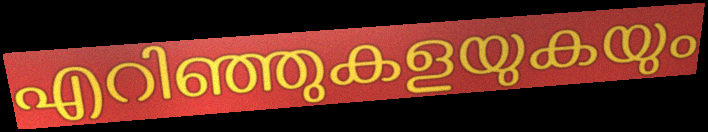
എറിഞ്ഞുകളയുകയും